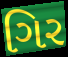
ગિર